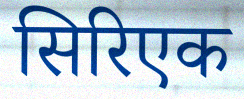
सिरिएक